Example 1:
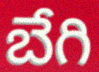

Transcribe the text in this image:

బేగి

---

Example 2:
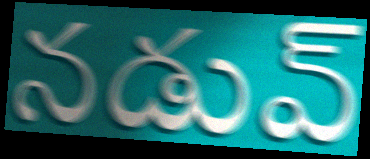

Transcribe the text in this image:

నడువ్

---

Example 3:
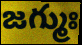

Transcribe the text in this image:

జగ్ముః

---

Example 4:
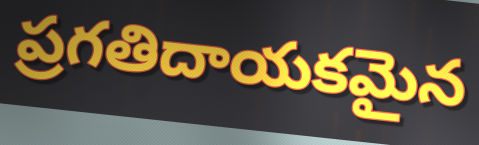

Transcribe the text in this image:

ప్రగతిదాయకమైన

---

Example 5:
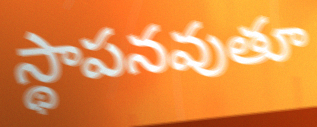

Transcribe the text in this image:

స్థాపనవుతూ